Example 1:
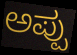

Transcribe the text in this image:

ಅಪ್ಪು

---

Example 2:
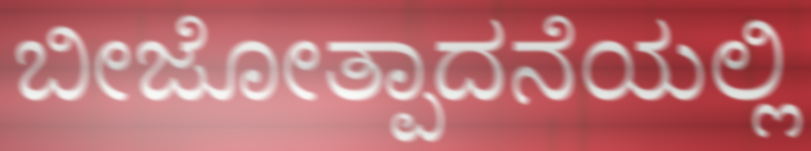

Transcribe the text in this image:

ಬೀಜೋತ್ಪಾದನೆಯಲ್ಲಿ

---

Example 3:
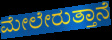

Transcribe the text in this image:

ಮೇಲೇರುತ್ತಾನೆ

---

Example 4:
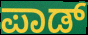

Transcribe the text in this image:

ಪಾಡ್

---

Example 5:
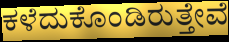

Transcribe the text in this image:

ಕಳೆದುಕೊಂಡಿರುತ್ತೇವೆ